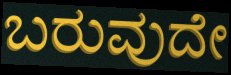
ಬರುವುದೇ